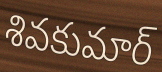
శివకుమార్